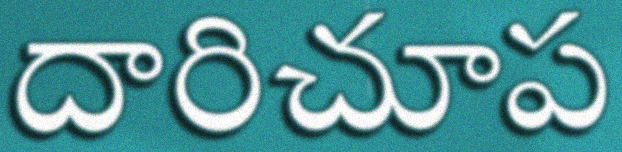
దారిచూప